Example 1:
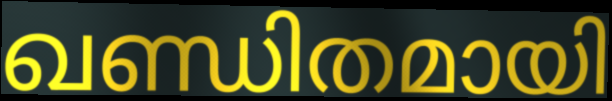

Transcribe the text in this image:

ഖണ്ഡിതമായി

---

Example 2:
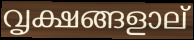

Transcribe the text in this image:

വൃക്ഷങ്ങളാല്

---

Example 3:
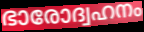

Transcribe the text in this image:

ഭാരോദ്വഹനം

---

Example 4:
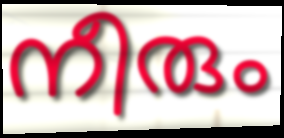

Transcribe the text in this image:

നീരും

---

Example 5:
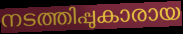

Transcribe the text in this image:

നടത്തിപ്പുകാരായ